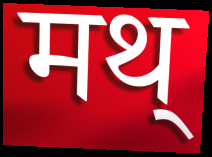
मथ्